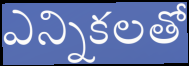
ఎన్నికలతో